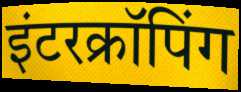
इंटरक्रॉपिंग